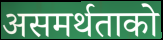
असमर्थताको